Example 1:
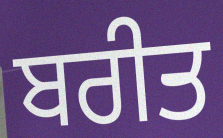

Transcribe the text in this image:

ਬਰੀਤ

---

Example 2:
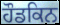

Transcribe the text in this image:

ਹੌਡਕਿਨ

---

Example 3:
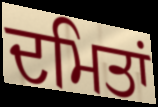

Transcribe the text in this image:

ਦਮਿਤਾਂ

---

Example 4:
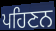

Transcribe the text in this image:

ਪਹਿਣਨ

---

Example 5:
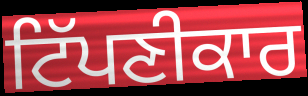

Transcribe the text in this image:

ਟਿੱਪਣੀਕਾਰ